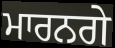
ਮਾਰਨਗੇ